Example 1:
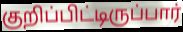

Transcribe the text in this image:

குறிப்பிட்டிருப்பார்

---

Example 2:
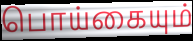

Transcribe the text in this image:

பொய்கையும்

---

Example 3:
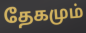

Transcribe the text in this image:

தேகமும்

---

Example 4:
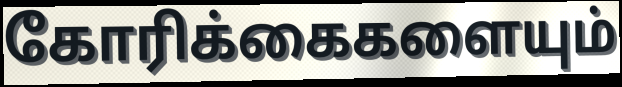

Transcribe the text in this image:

கோரிக்கைகளையும்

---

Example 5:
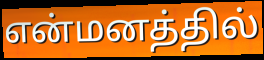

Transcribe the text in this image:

என்மனத்தில்